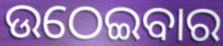
ଉଠେଇବାର